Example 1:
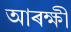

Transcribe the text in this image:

আৰক্ষী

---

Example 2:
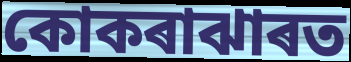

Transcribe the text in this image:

কোকৰাঝাৰত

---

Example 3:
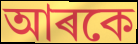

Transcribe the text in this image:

আৰকে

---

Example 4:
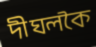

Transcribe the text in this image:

দীঘলকৈ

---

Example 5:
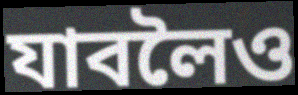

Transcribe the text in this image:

যাবলৈও